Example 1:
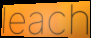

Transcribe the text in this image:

leach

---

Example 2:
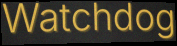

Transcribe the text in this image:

Watchdog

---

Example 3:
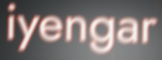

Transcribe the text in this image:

iyengar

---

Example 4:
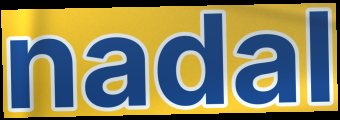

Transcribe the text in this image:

nadal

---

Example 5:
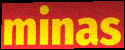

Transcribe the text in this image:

minas